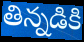
తిన్నడికి